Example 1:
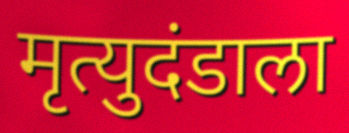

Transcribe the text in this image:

मृत्युदंडाला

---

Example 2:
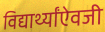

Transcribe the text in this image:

विद्यार्थ्यांऐवजी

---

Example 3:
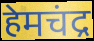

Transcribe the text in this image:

हेमचंद्र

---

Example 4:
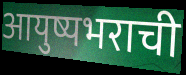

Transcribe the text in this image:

आयुष्यभराची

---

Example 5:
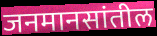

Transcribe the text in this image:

जनमानसांतील